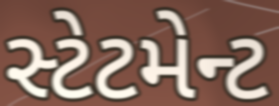
સ્ટેટમેન્ટ